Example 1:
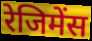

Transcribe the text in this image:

रेजिमेंस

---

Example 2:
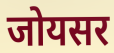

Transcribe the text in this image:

जोयसर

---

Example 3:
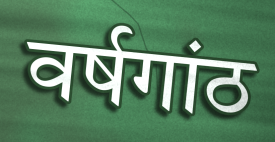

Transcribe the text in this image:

वर्षगांठ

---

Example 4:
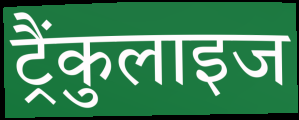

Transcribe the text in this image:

ट्रैंकुलाइज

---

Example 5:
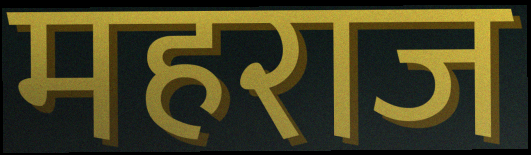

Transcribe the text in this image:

महराज